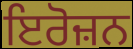
ਇਰੋਜ਼ਨ